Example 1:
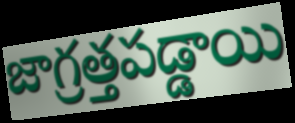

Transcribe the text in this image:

జాగ్రత్తపడ్డాయి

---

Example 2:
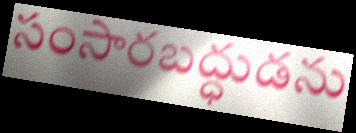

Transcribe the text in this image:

సంసారబద్ధుడను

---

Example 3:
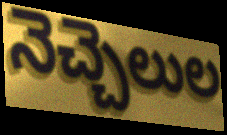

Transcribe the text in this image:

నెచ్చెలుల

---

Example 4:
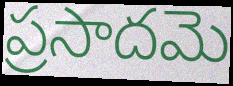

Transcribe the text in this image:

ప్రసాదమె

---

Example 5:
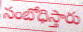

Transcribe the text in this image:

సంబోధిస్తారు